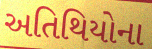
અતિથિયોના